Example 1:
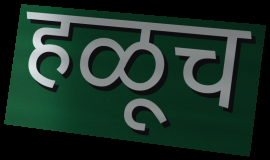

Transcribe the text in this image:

हळूच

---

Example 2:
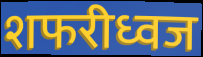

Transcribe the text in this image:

शफरीध्वज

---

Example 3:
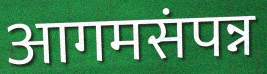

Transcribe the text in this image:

आगमसंपन्न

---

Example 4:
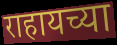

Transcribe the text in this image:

राहायच्या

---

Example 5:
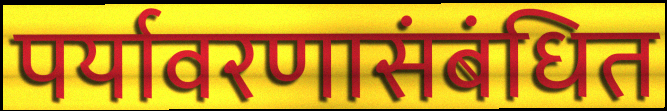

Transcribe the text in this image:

पर्यावरणासंबंधित